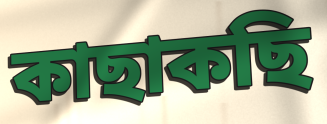
কাছাকছি